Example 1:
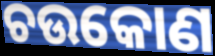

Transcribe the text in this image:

ଚଉକୋଣ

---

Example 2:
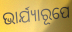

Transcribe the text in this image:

ଭାର୍ଯ୍ୟାରୂପେ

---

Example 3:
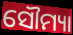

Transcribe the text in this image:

ସୌମ୍ୟା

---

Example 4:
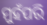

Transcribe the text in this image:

ମୁହଁପରି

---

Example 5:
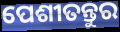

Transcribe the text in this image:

ପେଶୀତନ୍ତୁର